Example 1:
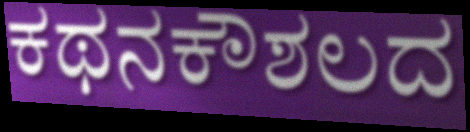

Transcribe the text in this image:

ಕಥನಕೌಶಲದ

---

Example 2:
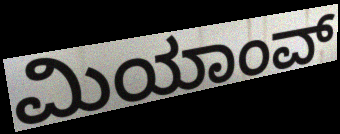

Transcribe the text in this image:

ಮಿಯಾಂವ್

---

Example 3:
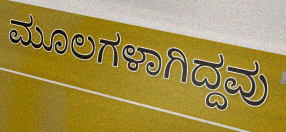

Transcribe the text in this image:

ಮೂಲಗಳಾಗಿದ್ದವು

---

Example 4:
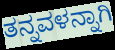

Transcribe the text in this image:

ತನ್ನವಳನ್ನಾಗಿ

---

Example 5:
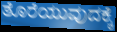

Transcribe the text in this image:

ತೊರೆಯುವುದಕ್ಕೆ